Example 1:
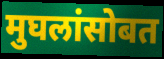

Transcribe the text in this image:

मुघलांसोबत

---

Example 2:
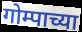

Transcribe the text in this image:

गोम्पाच्या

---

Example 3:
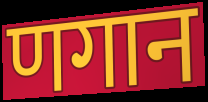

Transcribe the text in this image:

णगान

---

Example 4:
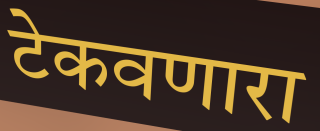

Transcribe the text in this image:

टेकवणारा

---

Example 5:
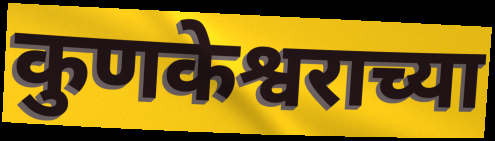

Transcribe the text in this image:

कुणकेश्वराच्या